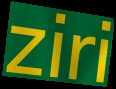
ziri